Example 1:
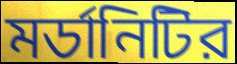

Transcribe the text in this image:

মর্ডানিটির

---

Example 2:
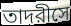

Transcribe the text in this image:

তাদরীসে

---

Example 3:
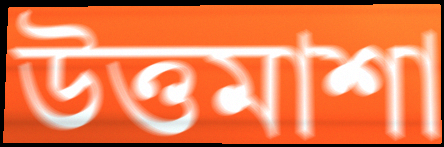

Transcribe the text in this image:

উত্তমাশা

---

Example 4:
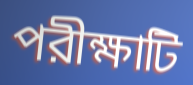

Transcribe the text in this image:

পরীক্ষাটি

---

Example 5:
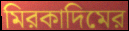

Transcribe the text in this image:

মিরকাদিমের